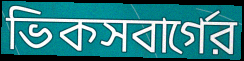
ভিকসবার্গের